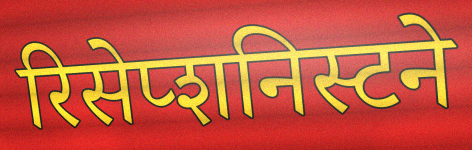
रिसेप्शनिस्टने